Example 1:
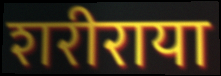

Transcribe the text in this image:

शरीराया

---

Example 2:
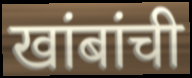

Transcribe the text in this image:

खांबांची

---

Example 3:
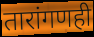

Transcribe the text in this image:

तारांगणही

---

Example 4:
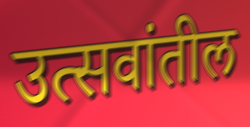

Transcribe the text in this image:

उत्सवांतील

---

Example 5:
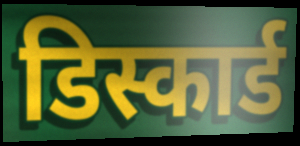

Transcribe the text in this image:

डिस्कार्ड